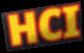
HCI